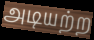
அடியற்ற